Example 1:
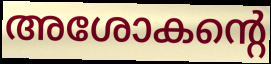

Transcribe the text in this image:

അശോകന്റെ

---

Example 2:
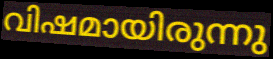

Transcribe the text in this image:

വിഷമായിരുന്നു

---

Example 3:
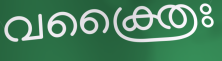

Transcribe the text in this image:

വക്ത്രൈഃ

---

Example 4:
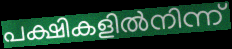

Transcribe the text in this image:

പക്ഷികളിൽനിന്ന്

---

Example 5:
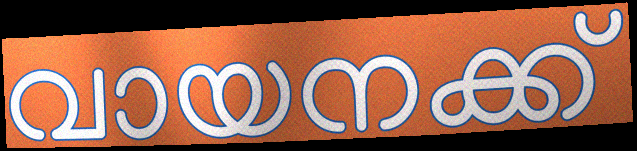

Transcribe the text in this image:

വായനക്ക്